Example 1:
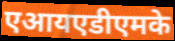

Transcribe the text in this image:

एआयएडीएमके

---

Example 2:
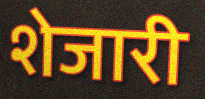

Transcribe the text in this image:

शेजारी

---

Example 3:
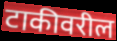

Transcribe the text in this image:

टाकीवरील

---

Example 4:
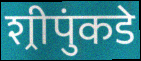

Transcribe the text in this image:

श्रीपुंकडे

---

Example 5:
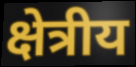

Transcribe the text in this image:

क्षेत्रीय